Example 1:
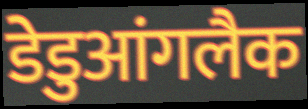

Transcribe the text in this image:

डेडुआंगलैक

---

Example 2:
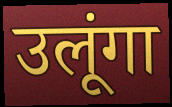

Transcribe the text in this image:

उलूंगा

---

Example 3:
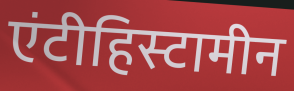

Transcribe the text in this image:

एंटीहिस्टामीन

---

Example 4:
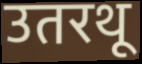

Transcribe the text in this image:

उतरथू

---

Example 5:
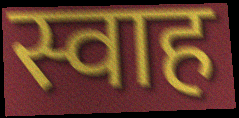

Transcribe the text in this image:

स्वाह